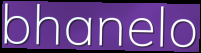
bhanelo